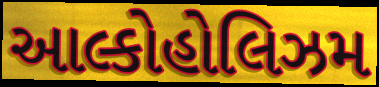
આલ્કોહોલિઝમ